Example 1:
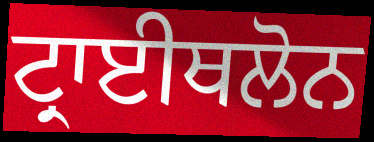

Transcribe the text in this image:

ਟ੍ਰਾਈਥਲੋਨ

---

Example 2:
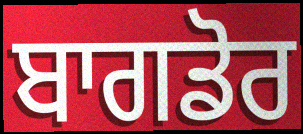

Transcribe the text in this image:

ਬਾਗਡੋਰ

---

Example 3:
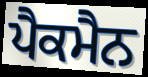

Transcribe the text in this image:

ਪੈਕਮੈਨ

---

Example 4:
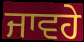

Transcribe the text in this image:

ਜਾਵਹੇ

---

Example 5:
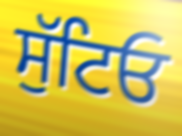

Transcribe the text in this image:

ਸੁੱਟਿਓ